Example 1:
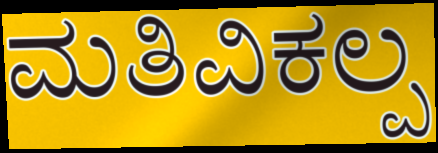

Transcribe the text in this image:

ಮತಿವಿಕಲ್ಪ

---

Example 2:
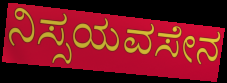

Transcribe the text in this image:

ನಿಸ್ಸಯವಸೇನ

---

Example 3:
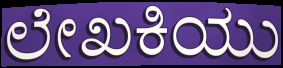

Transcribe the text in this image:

ಲೇಖಕಿಯು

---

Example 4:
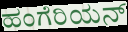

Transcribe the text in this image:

ಹಂಗೆರಿಯನ್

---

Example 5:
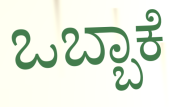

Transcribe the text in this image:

ಒಬ್ಬಾಕೆ